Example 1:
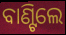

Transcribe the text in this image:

ବାଣ୍ଟିଲେ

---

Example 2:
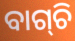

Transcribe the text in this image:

ବାଗ୍‌ଚି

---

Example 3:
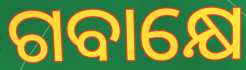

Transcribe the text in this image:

ଗବାକ୍ଷେ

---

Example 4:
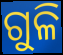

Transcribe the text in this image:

ଗୁଳି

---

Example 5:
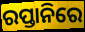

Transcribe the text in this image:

ରପ୍ତାନିରେ